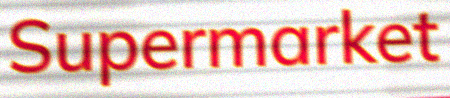
Supermarket